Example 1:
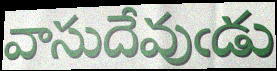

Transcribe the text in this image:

వాసుదేవుఁడు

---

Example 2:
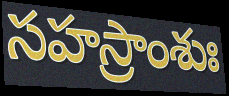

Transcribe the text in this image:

సహస్రాంశుః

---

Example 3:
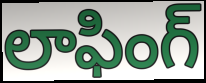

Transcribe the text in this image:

లాఫింగ్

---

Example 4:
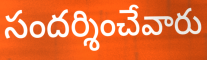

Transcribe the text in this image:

సందర్శించేవారు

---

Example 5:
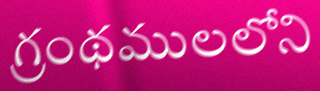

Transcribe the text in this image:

గ్రంథములలోని